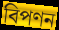
বিপণন